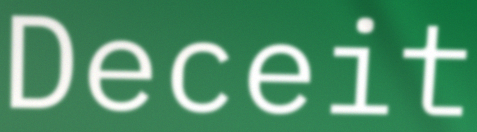
Deceit